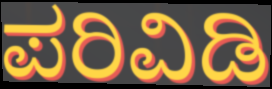
ಪರಿವಿಡಿ